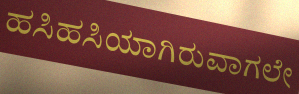
ಹಸಿಹಸಿಯಾಗಿರುವಾಗಲೇ